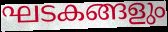
ഘടകങ്ങളും